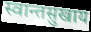
स्वान्तसुखाय